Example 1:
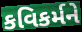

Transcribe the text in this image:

કવિકર્મને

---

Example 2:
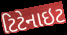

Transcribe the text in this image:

ટિટેનાઇટ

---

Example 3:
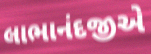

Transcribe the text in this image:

લાભાનંદજીએ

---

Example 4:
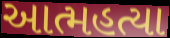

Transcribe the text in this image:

આત્મહત્યા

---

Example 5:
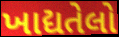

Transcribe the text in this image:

ખાદ્યતેલો